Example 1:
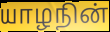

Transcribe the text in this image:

யாழநின்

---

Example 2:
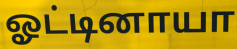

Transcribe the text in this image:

ஓட்டினாயா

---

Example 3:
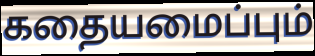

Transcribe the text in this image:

கதையமைப்பும்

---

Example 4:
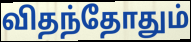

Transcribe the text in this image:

விதந்தோதும்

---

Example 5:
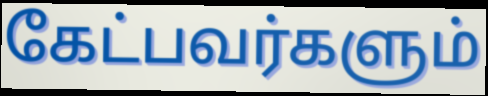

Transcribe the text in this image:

கேட்பவர்களும்